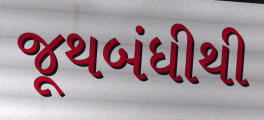
જૂથબંધીથી